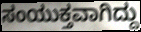
ಸಂಯುಕ್ತವಾಗಿದ್ದು